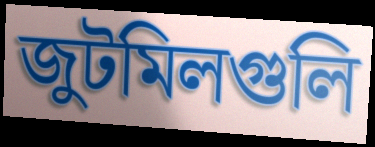
জুটমিলগুলি